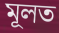
মূলত